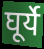
घूर्ये